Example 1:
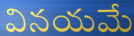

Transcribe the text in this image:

వినయమే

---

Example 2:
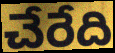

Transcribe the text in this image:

చేరేది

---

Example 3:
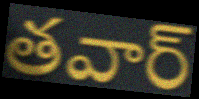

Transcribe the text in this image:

తవార్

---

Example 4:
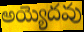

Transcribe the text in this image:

అయ్యెదవు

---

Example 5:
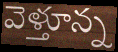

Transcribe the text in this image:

వెళ్తూన్న